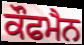
ਕੌਫਮੈਨ